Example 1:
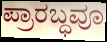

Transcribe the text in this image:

ಪ್ರಾರಬ್ಧವೂ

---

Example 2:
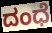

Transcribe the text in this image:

ದಂಧೆ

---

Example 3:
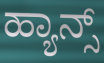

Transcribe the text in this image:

ಹ್ಯಾನ್ಸ್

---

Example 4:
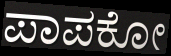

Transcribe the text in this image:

ಪಾಪಕೋ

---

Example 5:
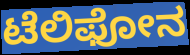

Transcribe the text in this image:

ಟೆಲಿಫೋನ